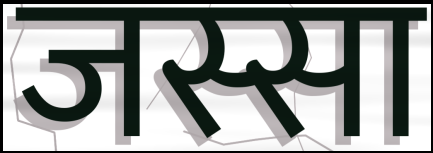
जस्सा